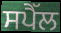
ਸਪੈੱਲ